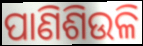
ପାଣିଶିଉଳି